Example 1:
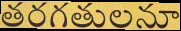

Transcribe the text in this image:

తరగతులనూ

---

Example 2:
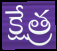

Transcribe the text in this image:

క్షేత్ర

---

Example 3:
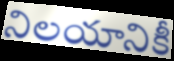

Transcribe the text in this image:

నిలయానికీ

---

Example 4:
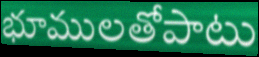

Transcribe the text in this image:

భూములతోపాటు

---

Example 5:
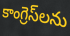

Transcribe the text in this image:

కాంగ్రెస్‌లను